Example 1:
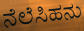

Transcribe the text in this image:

ನೆಲೆಸಿಹನು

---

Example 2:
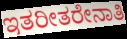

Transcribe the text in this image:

ಇತರೀತರೇನಾತಿ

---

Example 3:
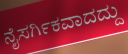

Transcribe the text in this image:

ನೈಸರ್ಗಿಕವಾದದ್ದು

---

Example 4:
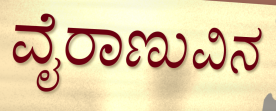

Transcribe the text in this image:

ವೈರಾಣುವಿನ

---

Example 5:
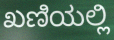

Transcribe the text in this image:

ಖಣಿಯಲ್ಲಿ